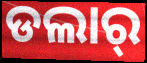
ଡଲାର୍